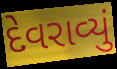
દેવરાવ્યું